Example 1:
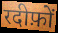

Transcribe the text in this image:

रदीफ़ों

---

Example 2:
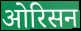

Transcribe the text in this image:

ओरिसन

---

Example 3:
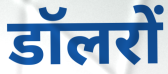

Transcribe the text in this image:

डॉलरों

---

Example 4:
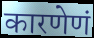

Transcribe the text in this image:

कारणेणं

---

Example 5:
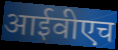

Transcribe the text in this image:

आईवीएच